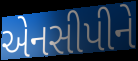
એનસીપીને